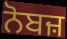
ਨੋਬਜ਼